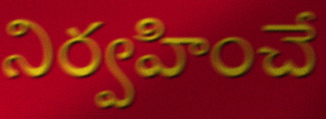
నిర్వహించే